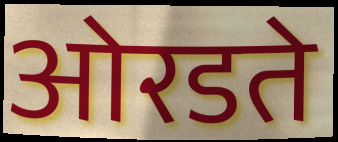
ओरडते